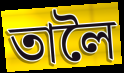
তালৈ